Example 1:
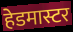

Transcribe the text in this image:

हेडमास्टर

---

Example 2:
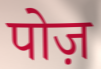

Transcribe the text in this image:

पोज़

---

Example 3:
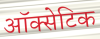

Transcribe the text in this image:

ऑक्सेटिक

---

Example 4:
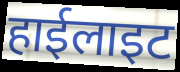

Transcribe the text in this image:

हाईलाइट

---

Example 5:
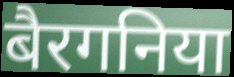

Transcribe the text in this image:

बैरगनिया